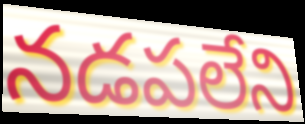
నడపలేని